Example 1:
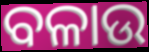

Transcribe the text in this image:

ବଳାଉ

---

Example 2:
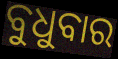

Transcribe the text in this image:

ବୁଧୁବାର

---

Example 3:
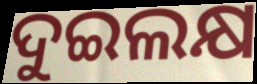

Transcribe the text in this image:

ଦୁଇଲକ୍ଷ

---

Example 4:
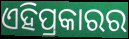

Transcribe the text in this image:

ଏହିପ୍ରକାରର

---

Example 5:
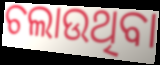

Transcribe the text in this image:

ଚଲାଉଥିବା